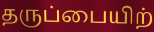
தருப்பையிற்